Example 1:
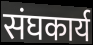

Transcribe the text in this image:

संघकार्य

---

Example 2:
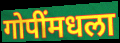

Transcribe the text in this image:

गोपींमधला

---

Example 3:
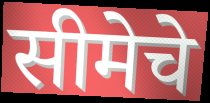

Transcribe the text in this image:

सीमेचे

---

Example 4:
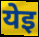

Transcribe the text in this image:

येइ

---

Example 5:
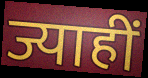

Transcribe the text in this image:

ज्याहीं